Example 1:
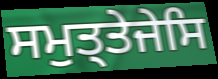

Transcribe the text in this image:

ਸਮੁਤ੍ਤੇਜੇਸਿ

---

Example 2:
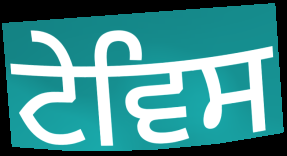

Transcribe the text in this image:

ਟੇਵਿਸ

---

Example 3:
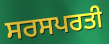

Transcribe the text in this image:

ਸਰਸਪਰਤੀ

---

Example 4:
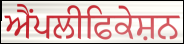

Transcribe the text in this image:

ਐਂਪਲੀਫਿਕੇਸ਼ਨ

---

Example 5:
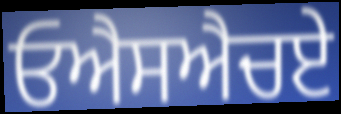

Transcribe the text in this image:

ਓਐਸਐਚਏ